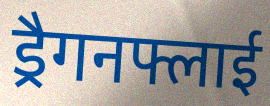
ड्रैगनफ्लाई